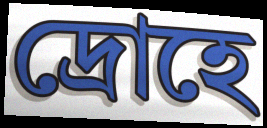
দ্রোহে